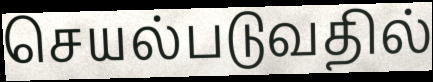
செயல்படுவதில்